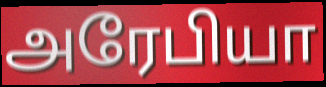
அரேபியா